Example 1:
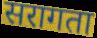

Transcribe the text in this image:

सरागता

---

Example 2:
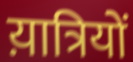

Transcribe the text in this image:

य़ात्रियों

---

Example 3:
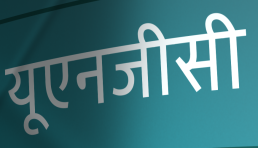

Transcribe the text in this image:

यूएनजीसी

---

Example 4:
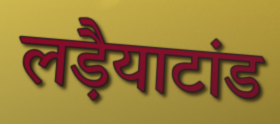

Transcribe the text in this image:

लड़ैयाटांड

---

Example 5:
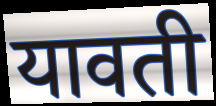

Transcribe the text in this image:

यावती